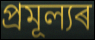
প্ৰমূল্যৰ